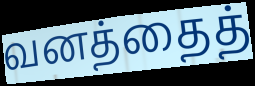
வனத்தைத்